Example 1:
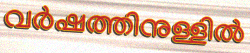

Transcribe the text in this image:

വർഷത്തിനുള്ളിൽ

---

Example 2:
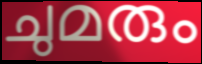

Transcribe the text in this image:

ചുമരും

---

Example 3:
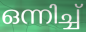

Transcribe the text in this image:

ഒന്നിച്ച്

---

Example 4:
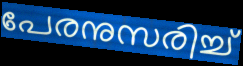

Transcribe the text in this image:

പേരനുസരിച്ച്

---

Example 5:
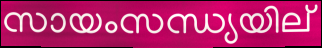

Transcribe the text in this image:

സായംസന്ധ്യയില്